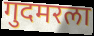
गुदमरला